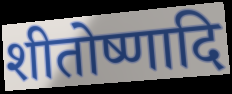
शीतोष्णादि